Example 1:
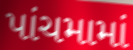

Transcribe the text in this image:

પાંચમામાં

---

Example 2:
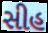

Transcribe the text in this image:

સીહ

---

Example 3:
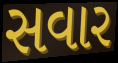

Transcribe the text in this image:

સવાર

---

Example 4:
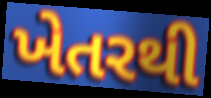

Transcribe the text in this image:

ખેતરથી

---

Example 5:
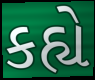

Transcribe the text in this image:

કહ્યે